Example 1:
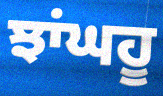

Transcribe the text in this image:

ਝਾਂਘਹੂ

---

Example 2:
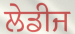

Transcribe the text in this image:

ਲੇਡੀਜ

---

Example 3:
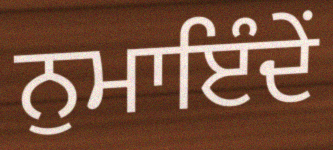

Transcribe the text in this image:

ਨੁਮਾਇੰਦੇਂ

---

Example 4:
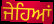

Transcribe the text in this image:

ਜੇਹਿਆਂ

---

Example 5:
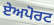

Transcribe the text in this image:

ਏਅਪੋਰਟ